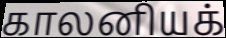
காலனியக்